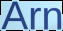
Arn